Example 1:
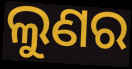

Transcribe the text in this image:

ଲୁଣର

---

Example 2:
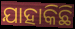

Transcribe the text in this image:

ଯାହାକିଛି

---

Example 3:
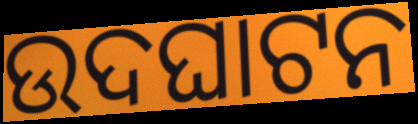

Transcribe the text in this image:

ଉଦଘାଟନ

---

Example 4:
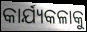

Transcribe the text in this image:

କାର୍ଯ୍ୟକଳାକୁ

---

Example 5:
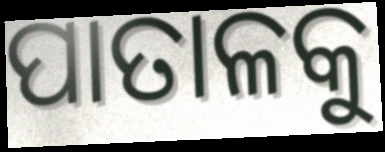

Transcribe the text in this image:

ପାତାଳକୁ